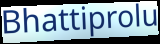
Bhattiprolu